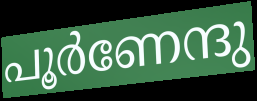
പൂർണേന്ദു